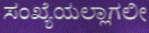
ಸಂಖ್ಯೆಯಲ್ಲಾಗಲೀ